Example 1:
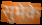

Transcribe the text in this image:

सुमेके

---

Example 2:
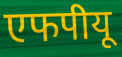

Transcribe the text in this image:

एफपीयू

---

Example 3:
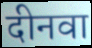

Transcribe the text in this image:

दीनवा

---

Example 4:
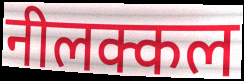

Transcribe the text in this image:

नीलक्कल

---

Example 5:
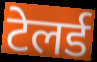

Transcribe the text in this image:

टेलर्ड